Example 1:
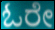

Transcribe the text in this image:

ಓರೇ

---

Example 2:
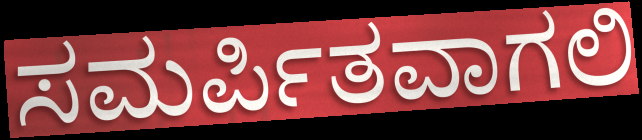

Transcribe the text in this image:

ಸಮರ್ಪಿತವಾಗಲಿ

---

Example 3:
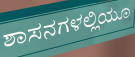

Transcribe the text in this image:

ಶಾಸನಗಳಲ್ಲಿಯೂ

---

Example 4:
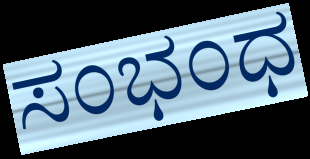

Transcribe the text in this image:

ಸಂಭಂಧ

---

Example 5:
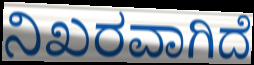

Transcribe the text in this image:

ನಿಖರವಾಗಿದೆ